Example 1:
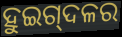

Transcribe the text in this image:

ହୁଇଗ୍‌ଦଳର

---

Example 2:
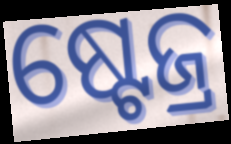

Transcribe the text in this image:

ଷ୍ଟେଜ୍ର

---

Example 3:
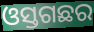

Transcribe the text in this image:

ଓସ୍ତଗଛର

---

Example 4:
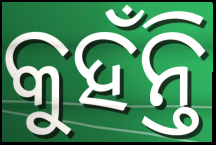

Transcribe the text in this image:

କୁହଁନ୍ତି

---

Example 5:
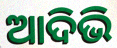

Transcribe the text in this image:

ଆଦିଭି